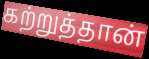
கற்றுத்தான்